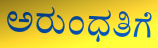
ಅರುಂಧತಿಗೆ